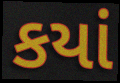
કયાં